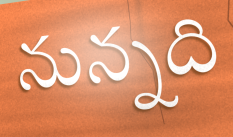
నున్నది